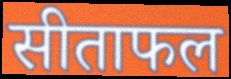
सीताफल